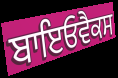
ਬਾਇਓਵੈਕਸ